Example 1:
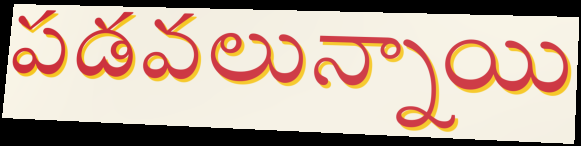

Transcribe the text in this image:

పడవలున్నాయి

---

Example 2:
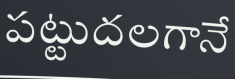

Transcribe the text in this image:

పట్టుదలగానే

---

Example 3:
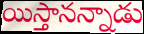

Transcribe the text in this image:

యిస్తానన్నాడు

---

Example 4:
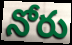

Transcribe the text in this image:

నోరు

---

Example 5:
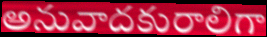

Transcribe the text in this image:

అనువాదకురాలిగా